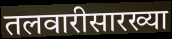
तलवारीसारख्या